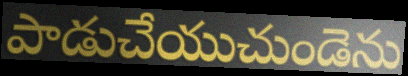
పాడుచేయుచుండెను